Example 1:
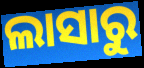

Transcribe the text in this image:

ଲାସାରୁ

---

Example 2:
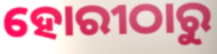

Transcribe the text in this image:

ହୋରୀଠାରୁ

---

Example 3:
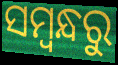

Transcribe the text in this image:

ସମ୍ୱନ୍ଧରୁ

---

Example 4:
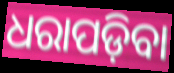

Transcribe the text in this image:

ଧରାପଡ଼ିବା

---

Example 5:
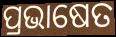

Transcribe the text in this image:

ପ୍ରଭାଷେତ